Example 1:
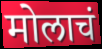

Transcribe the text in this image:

मोलाचं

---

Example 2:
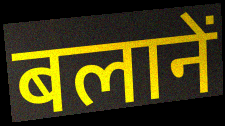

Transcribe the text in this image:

बलानें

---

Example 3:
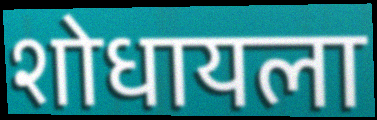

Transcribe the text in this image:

शोधायला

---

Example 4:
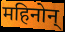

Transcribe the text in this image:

महिनोन्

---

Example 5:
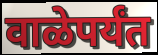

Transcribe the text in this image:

वाळेपर्यंत